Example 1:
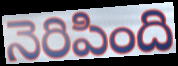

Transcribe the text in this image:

నెరిపింది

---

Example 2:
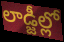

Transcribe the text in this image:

లాడ్జీల్లో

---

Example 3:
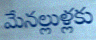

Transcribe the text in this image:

మేనల్లుళ్లకు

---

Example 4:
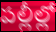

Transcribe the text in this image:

పల్లీల్లో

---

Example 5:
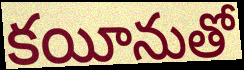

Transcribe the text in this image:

కయీనుతో